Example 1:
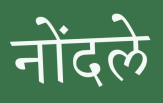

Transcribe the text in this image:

नोंदले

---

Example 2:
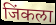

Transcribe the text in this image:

जिंकला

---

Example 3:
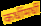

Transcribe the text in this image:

कधींमधीं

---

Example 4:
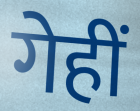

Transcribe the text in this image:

गेहीं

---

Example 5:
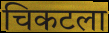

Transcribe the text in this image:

चिकटला